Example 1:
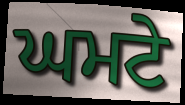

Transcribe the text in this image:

ਘਮਟੇ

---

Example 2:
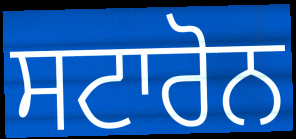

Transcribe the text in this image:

ਸਟਾਰੋਨ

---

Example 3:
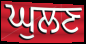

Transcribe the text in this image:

ਘੁਲਣ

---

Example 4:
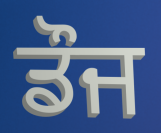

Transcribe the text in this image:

ਡੌਜ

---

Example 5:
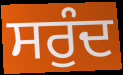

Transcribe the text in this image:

ਸਰੁੰਦ